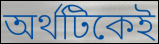
অর্থটিকেই